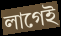
লাগেই